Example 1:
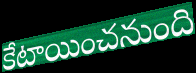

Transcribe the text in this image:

కేటాయించనుంది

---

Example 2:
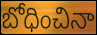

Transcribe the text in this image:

బోధించినా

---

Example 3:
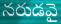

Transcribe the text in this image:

నరుడవై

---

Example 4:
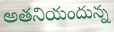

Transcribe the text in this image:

అతనియందున్న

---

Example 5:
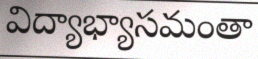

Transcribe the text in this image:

విద్యాభ్యాసమంతా